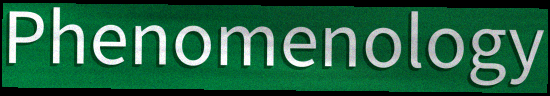
Phenomenology